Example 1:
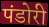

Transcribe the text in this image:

पंडोरी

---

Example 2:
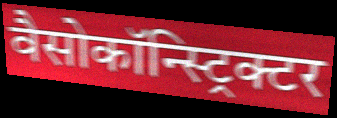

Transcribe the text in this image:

वैसोकॉन्स्ट्रिक्टर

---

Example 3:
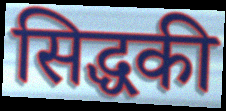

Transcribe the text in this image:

सिद्धकी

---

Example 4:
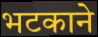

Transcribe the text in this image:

भटकाने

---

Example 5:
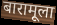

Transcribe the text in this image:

बारामूला